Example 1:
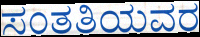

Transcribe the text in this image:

ಸಂತತಿಯವರ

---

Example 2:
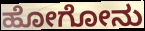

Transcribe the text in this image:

ಹೋಗೋನು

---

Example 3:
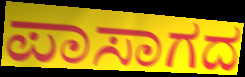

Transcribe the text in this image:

ಪಾಸಾಗದ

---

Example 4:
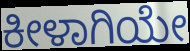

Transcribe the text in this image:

ಕೀಳಾಗಿಯೇ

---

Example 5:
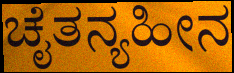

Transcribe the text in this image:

ಚೈತನ್ಯಹೀನ